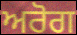
ਅਰੋਗ